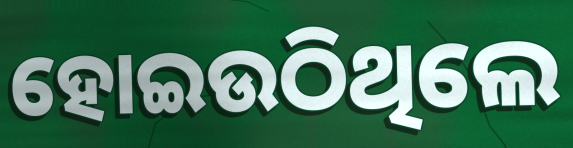
ହୋଇଉଠିଥିଲେ